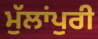
ਮੁੱਲਾਂਪੁਰੀ